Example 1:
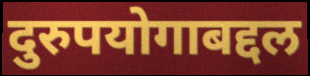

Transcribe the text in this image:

दुरुपयोगाबद्दल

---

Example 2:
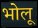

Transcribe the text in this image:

भोलू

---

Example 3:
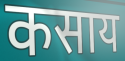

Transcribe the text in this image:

कसाय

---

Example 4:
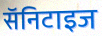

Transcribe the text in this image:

सॅनिटाइज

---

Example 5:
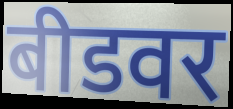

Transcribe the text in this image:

बीडवर